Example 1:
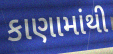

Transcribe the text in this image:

કાણામાંથી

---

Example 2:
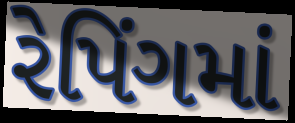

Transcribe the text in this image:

રેપિંગમાં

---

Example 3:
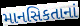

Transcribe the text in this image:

માનસિકતાનાં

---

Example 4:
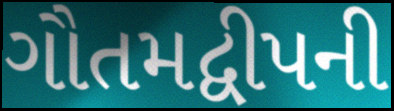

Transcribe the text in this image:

ગૌતમદ્વીપની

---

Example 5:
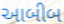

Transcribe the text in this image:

આબીબ